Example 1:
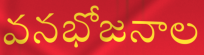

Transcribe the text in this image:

వనభోజనాల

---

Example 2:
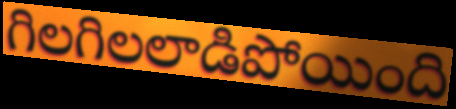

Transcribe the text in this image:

గిలగిలలాడిపోయింది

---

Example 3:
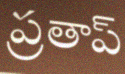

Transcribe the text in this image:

ప్రతాప్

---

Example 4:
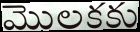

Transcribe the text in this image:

మొలకకు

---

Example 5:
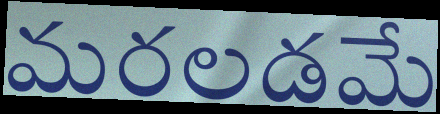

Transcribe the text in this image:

మరలడమే